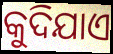
କୁଦିଯାଏ